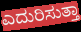
ಎದುರಿಸುತ್ತಾ